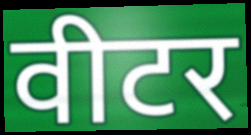
वीटर